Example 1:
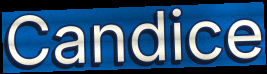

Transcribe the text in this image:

Candice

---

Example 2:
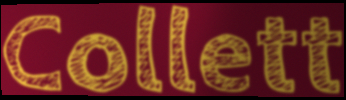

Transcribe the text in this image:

Collett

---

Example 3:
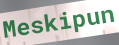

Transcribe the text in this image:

Meskipun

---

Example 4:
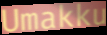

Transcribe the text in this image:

Umakku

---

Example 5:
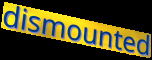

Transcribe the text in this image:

dismounted